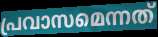
പ്രവാസമെന്നത്